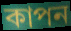
কাপন